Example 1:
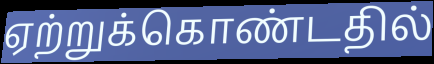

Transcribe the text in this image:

ஏற்றுக்கொண்டதில்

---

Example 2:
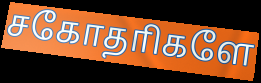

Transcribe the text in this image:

சகோதரிகளே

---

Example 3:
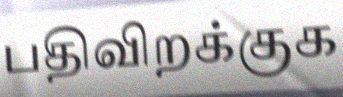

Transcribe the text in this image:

பதிவிறக்குக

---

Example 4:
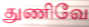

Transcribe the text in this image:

துணிவே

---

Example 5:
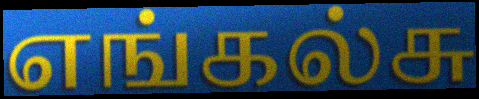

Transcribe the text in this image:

எங்கல்சு